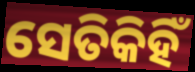
ସେତିକିହିଁ